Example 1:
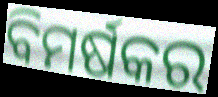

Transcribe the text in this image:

ବିମର୍ଷକର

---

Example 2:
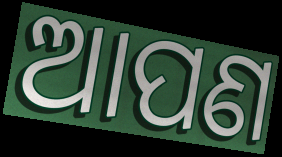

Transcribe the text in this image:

ଆପଣ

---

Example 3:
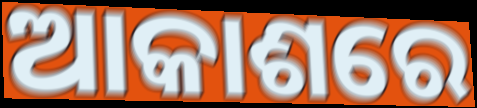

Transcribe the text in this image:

ଆକାଶରେ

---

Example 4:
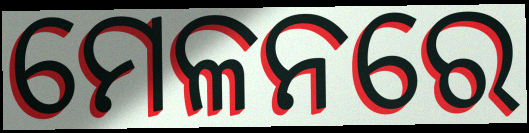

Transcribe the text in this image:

ମେଳନରେ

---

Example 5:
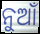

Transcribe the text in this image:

ନୁଆଁ